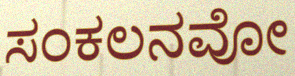
ಸಂಕಲನವೋ